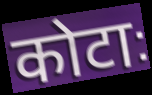
कोटाः